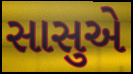
સાસુએ